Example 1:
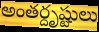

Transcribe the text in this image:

అంతర్దృష్టులు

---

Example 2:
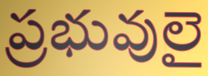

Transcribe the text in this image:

ప్రభువులై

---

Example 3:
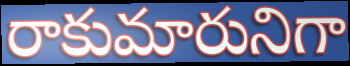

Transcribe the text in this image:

రాకుమారునిగా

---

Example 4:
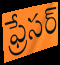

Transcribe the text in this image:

ఫ్రేసర్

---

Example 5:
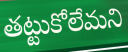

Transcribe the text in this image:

తట్టుకోలేమని